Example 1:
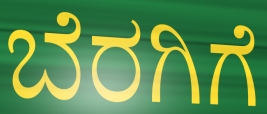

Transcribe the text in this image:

ಬೆರಗಿಗೆ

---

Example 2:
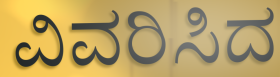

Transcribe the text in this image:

ವಿವರಿಸಿದ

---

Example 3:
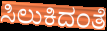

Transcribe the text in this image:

ಸಿಲುಕಿದಂತೆ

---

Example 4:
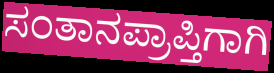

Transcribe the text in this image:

ಸಂತಾನಪ್ರಾಪ್ತಿಗಾಗಿ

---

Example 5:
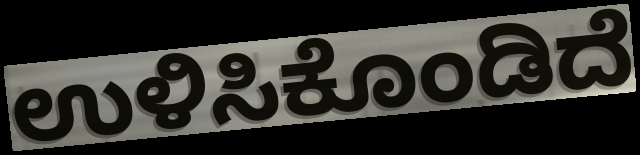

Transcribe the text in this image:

ಉಳಿಸಿಕೊಂಡಿದೆ